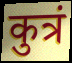
कुत्रं